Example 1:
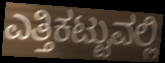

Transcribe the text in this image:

ಎತ್ತಿಕಟ್ಟುವಲ್ಲಿ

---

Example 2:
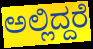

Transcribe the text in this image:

ಅಲ್ಲಿದ್ದರೆ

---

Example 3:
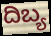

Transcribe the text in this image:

ದಿಬ್ಯ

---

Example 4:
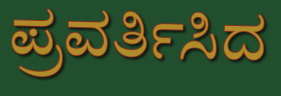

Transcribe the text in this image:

ಪ್ರವರ್ತಿಸಿದ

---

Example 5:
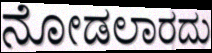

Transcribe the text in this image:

ನೋಡಲಾರದು